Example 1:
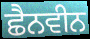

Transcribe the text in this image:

ਛੈਨਵੀਨ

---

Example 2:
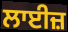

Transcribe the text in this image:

ਲਾਈਜ਼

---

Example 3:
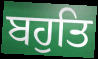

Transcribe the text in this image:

ਬਹੁਤਿ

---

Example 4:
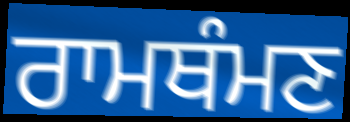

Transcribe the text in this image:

ਰਾਮਥੰਮਣ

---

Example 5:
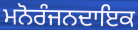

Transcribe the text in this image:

ਮਨੋਰੰਜਨਦਾਇਕ